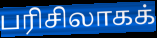
பரிசிலாகக்